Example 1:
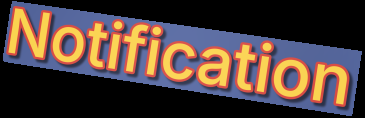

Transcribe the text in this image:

Notification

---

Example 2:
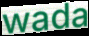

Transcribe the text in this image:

wada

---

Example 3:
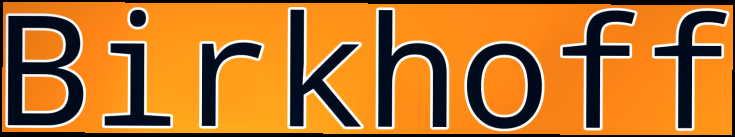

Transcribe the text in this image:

Birkhoff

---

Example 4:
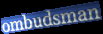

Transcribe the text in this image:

ombudsman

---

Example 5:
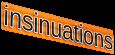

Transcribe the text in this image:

insinuations